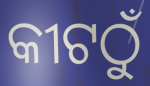
କୀଟଠୁଁ